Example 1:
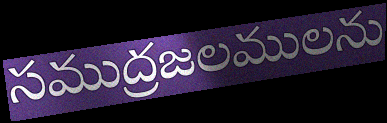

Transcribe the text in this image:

సముద్రజలములను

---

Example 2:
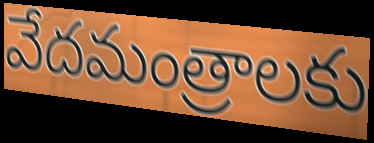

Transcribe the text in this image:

వేదమంత్రాలకు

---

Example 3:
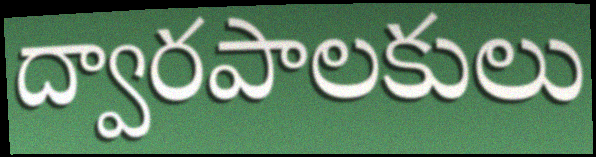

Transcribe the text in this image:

ద్వారపాలకులు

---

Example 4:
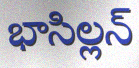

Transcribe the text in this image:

భాసిల్లన్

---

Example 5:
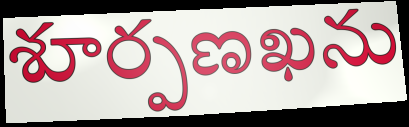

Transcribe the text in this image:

శూర్పణఖను